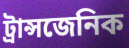
ট্রান্সজেনিক